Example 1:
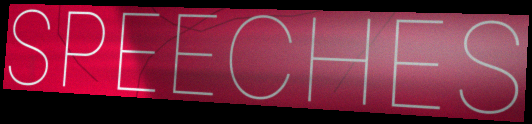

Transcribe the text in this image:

SPEECHES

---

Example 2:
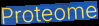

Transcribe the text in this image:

Proteome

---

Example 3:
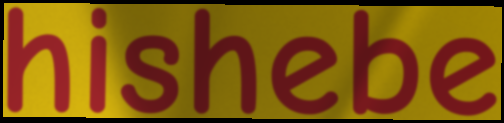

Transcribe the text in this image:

hishebe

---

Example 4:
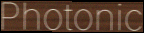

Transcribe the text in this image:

Photonic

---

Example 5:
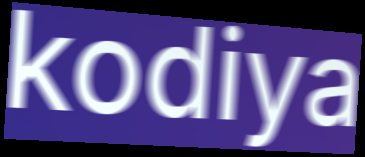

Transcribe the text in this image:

kodiya